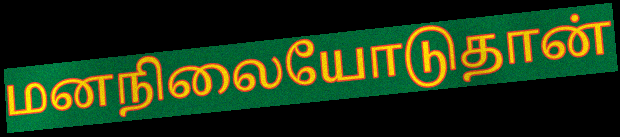
மனநிலையோடுதான்